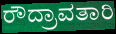
ರೌದ್ರಾವತಾರಿ